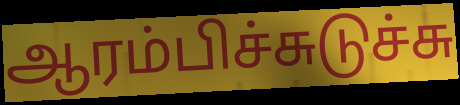
ஆரம்பிச்சுடுச்சு